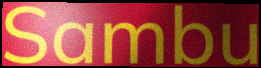
Sambu